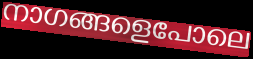
നാഗങ്ങളെപോലെ